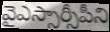
వైఎస్సార్సీపీని